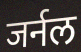
जर्नल